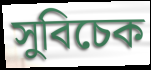
সুবিচেক